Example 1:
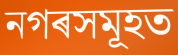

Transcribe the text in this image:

নগৰসমূহত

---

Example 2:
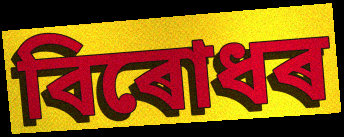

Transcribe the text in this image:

বিৰোধৰ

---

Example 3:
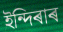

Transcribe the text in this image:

ইন্দিৰাৰ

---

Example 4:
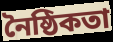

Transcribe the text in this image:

নৈষ্ঠিকতা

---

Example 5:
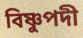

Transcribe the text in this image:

বিষ্ণুপদী